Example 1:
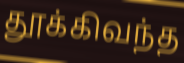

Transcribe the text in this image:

தூக்கிவந்த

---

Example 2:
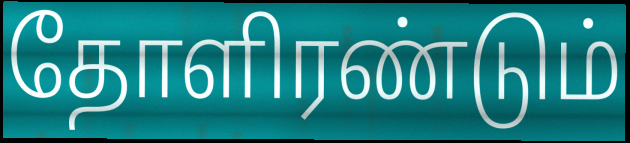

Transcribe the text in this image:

தோளிரண்டும்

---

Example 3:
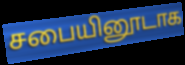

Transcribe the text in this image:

சபையினூடாக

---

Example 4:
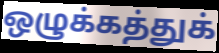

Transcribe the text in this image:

ஒழுக்கத்துக்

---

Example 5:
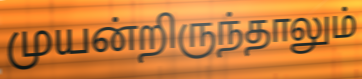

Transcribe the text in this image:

முயன்றிருந்தாலும்